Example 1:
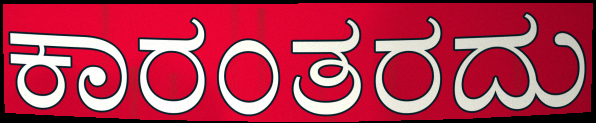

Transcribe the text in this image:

ಕಾರಂತರದು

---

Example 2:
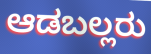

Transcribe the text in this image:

ಆಡಬಲ್ಲರು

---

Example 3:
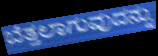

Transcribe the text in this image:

ಬೆತ್ತಲಾಗುವುದನ್ನು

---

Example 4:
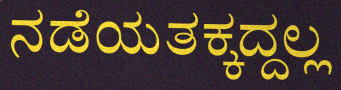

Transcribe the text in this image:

ನಡೆಯತಕ್ಕದ್ದಲ್ಲ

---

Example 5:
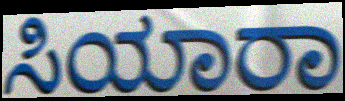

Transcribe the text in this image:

ಸಿಯಾರಾ